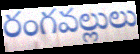
రంగవల్లులు